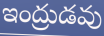
ఇంద్రుడవు